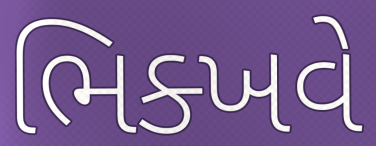
ભિક્ખવે